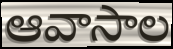
ఆవాసాల